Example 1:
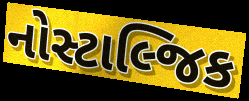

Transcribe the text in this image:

નોસ્ટાલ્જિક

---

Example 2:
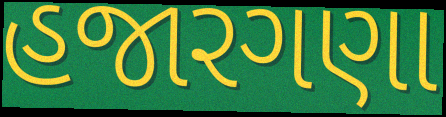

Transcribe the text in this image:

હજારગણા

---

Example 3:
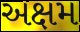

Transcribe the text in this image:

અક્ષમ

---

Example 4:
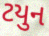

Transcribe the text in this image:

ટયુન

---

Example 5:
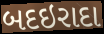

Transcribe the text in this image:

બદઇરાદા